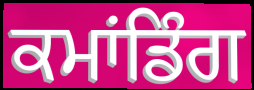
ਕਮਾਂਡਿੰਗ